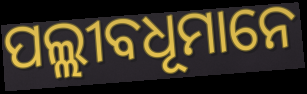
ପଲ୍ଲୀବଧୂମାନେ